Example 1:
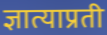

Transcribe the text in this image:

ज्ञात्याप्रती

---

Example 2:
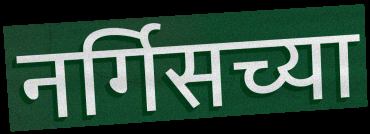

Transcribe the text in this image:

नर्गिसच्या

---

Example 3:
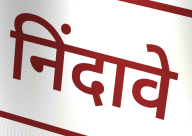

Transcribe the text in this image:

निंदावे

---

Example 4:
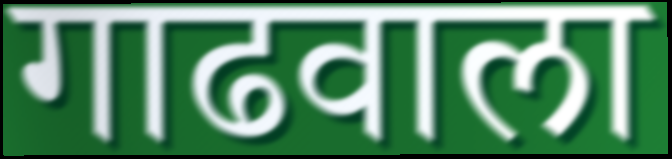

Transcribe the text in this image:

गाढवाला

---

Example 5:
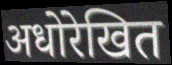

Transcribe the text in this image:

अधोरेखित